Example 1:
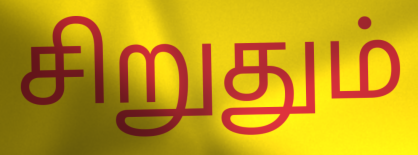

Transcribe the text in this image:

சிறுதும்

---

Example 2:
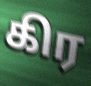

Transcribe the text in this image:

கிர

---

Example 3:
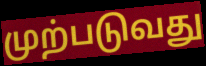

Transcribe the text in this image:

முற்படுவது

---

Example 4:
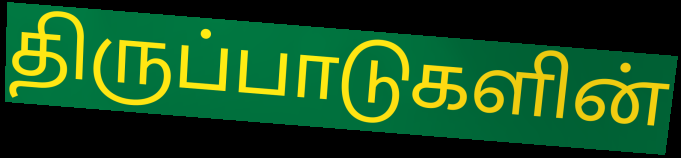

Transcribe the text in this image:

திருப்பாடுகளின்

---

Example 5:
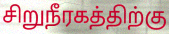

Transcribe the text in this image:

சிறுநீரகத்திற்கு